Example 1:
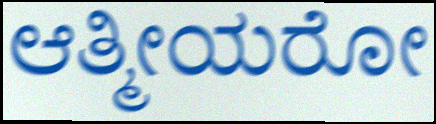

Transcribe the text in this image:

ಆತ್ಮೀಯರೋ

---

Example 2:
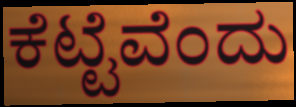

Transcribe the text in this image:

ಕೆಟ್ಟೆವೆಂದು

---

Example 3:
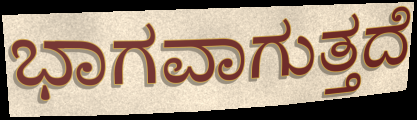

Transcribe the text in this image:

ಭಾಗವಾಗುತ್ತದೆ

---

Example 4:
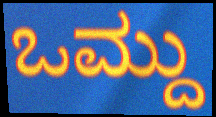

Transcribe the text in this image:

ಒಮ್ದು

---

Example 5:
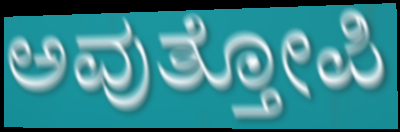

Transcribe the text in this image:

ಅವುತ್ತೋಪಿ